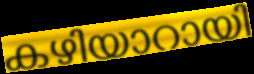
കഴിയാറായി